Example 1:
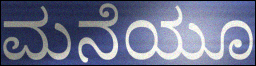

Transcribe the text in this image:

ಮನೆಯೂ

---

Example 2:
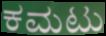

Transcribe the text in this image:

ಕಮಟು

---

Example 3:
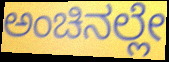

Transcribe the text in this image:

ಅಂಚಿನಲ್ಲೇ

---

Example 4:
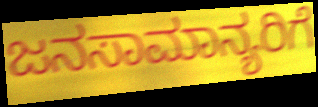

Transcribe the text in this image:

ಜನಸಾಮಾನ್ಯರಿಗೆ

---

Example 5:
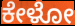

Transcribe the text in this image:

ಕೇಳೋ